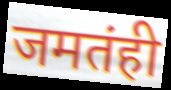
जमतंही